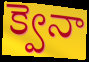
క్వెనా